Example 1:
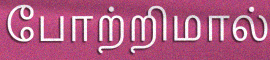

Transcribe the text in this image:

போற்றிமால்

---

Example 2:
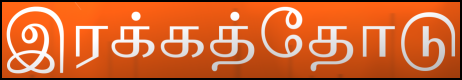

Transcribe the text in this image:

இரக்கத்தோடு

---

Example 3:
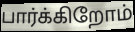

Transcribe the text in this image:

பார்க்கிறோம்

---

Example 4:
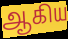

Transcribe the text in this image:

ஆகிய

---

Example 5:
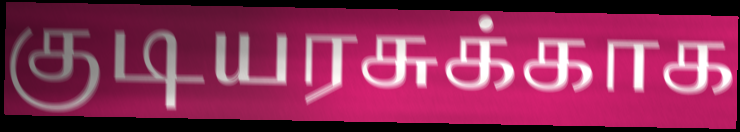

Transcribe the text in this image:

குடியரசுக்காக